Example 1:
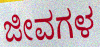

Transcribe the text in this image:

ಜೀವಗಳ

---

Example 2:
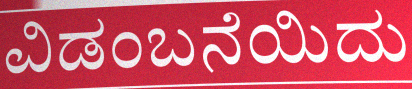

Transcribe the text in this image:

ವಿಡಂಬನೆಯಿದು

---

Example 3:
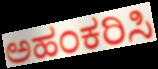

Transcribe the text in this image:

ಅಹಂಕರಿಸಿ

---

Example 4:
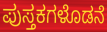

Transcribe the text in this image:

ಪುಸ್ತಕಗಳೊಡನೆ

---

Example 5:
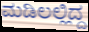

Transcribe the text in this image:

ಮಡಿಲಲ್ಲಿದ್ದ